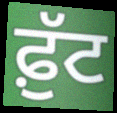
ਫ਼ੁੱਟ